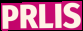
PRLIS